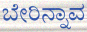
ಬೇರಿನ್ನಾವ